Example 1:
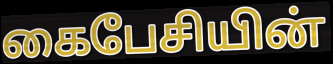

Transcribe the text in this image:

கைபேசியின்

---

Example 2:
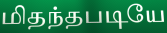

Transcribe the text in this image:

மிதந்தபடியே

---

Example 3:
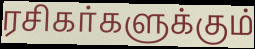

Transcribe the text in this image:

ரசிகர்களுக்கும்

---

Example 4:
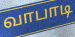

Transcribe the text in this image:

வாபாடி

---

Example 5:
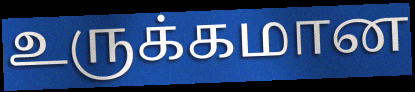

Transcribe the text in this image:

உருக்கமான